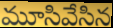
మూసివేసిన